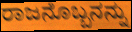
ರಾಜನೊಬ್ಬನನ್ನು